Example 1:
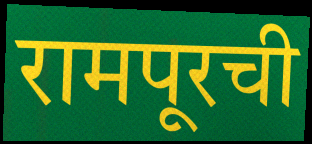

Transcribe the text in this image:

रामपूरची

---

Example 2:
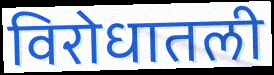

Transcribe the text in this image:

विरोधातली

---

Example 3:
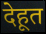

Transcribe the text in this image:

देहूत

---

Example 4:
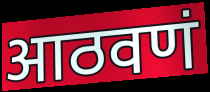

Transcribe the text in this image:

आठवणं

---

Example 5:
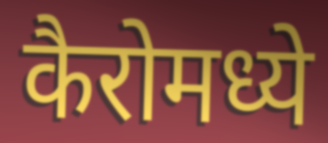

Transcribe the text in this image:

कैरोमध्ये